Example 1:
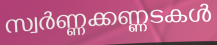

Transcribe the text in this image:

സ്വർണ്ണക്കണ്ണടകൾ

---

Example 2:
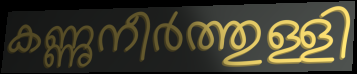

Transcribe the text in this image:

കണ്ണുനീർത്തുള്ളി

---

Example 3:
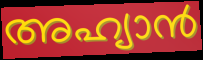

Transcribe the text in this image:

അഹ്യാൻ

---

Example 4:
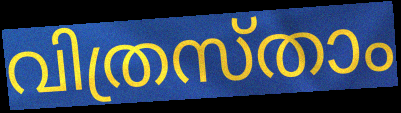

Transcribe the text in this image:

വിത്രസ്താം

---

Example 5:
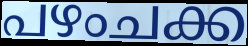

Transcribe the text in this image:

പഴംചക്ക